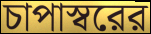
চাপাস্বরের